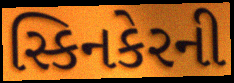
સ્કિનકેરની